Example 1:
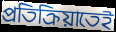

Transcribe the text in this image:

প্রতিক্রিয়াতেই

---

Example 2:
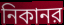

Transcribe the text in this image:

নিকানর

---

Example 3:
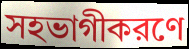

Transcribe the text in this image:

সহভাগীকরণে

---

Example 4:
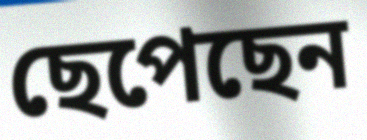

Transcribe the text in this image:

ছেপেছেন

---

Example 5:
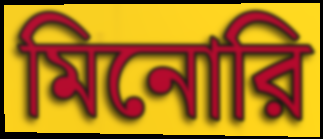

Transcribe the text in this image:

মিনোরি